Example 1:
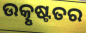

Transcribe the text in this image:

ଉତ୍କୃଷ୍ଟତର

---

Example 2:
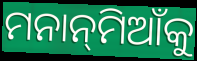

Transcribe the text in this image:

ମନାନ୍‌ମିଆଁକୁ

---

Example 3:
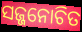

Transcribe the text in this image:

ସଜ୍ଜନୋଚିତ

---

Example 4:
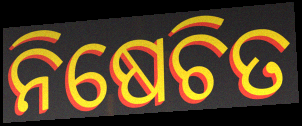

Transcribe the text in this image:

ନିଷେଚିତ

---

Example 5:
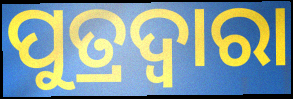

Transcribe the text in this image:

ପୁତ୍ରଦ୍ୱାରା